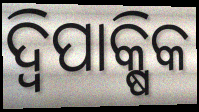
ଦ୍ୱିପାକ୍ଷିକ